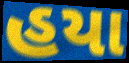
હયા